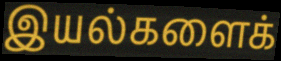
இயல்களைக்